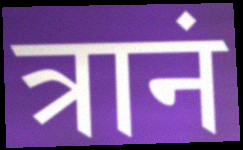
त्रानं